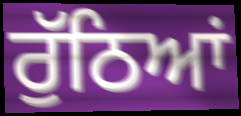
ਰੁੱਠਿਆਂ